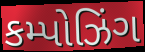
કમ્પોઝિંગ